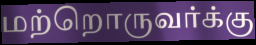
மற்றொருவர்க்கு